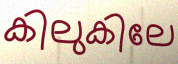
കിലുകിലേ